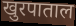
खुरपाताल